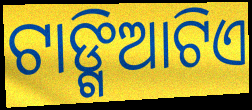
ଟାଙ୍ଗିଆଟିଏ